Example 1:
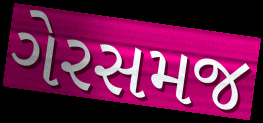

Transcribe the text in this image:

ગેરસમજ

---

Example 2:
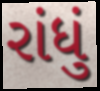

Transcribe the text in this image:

રાંધું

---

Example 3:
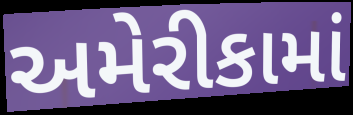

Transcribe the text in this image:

અમેરીકામાં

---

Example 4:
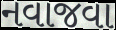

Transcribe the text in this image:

નવાજવા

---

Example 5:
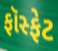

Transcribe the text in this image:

ફૉસ્ફેટ